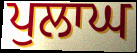
ਪੁਲਾਘ